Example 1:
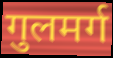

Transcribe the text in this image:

गुलमर्ग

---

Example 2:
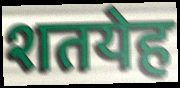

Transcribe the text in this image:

शतयेह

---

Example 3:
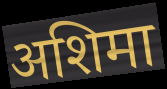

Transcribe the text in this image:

अशिमा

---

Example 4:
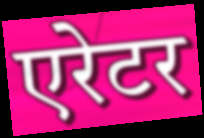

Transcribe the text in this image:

एरेटर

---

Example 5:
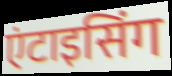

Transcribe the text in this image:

एंटाइसिंग